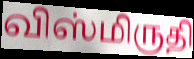
விஸ்மிருதி